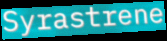
Syrastrene